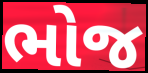
ભોજ